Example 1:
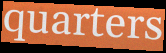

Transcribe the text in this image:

quarters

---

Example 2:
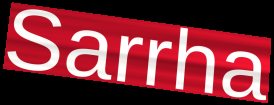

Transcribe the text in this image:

Sarrha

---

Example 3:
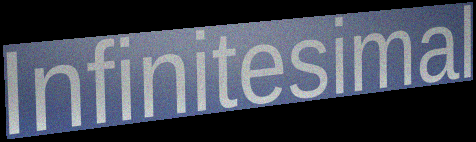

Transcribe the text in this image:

Infinitesimal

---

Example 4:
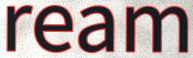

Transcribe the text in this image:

ream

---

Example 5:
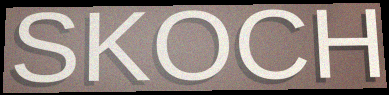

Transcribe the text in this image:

SKOCH